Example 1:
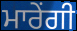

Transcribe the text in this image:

ਮਾਰੇਂਗੀ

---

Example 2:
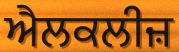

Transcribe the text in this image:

ਐਲਕਲੀਜ਼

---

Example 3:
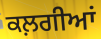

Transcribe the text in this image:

ਕਲ਼ਗੀਆਂ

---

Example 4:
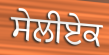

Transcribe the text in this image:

ਸੇਲੀਏਕ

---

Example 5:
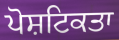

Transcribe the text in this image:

ਪੋਸ਼ਟਿਕਤਾ